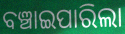
ବଞ୍ଚାଇପାରିଲା